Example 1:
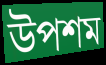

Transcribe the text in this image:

উপশম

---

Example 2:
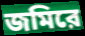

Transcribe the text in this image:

জমিরে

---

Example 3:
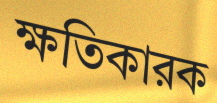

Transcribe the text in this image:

ক্ষতিকারক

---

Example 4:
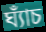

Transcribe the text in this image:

ঘ্যাঁচ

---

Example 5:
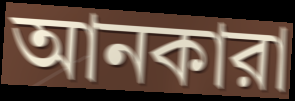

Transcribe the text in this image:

আনকারা